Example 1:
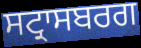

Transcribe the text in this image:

ਸਟ੍ਰਾਸਬਰਗ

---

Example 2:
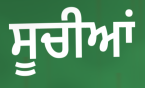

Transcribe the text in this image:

ਸੂਚੀਆਂ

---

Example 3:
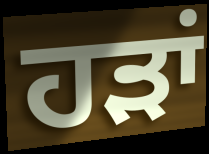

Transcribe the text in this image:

ਹੜਾਂ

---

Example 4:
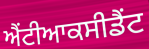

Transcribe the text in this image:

ਐਂਟੀਆਕਸੀਡੈਂਟ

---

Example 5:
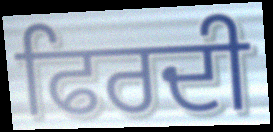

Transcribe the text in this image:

ਫਿਰਦੀ